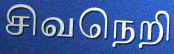
சிவநெறி